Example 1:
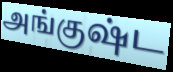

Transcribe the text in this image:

அங்குஷ்ட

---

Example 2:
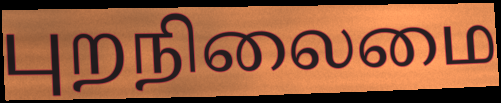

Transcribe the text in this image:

புறநிலைமை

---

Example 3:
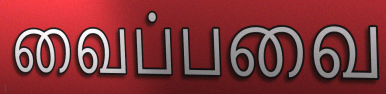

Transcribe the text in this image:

வைப்பவை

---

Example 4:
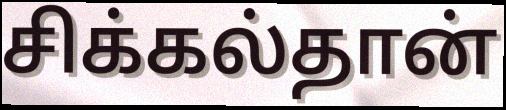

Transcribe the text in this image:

சிக்கல்தான்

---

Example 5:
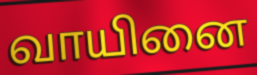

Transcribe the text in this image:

வாயினை